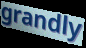
grandly